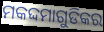
ମକଦ୍ଦମାଗୁଡିକର